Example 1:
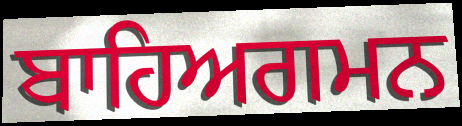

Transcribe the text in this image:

ਬਾਹਿਅਗਮਨ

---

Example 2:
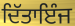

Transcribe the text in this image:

ਦਿੱਤਾਇੰਜ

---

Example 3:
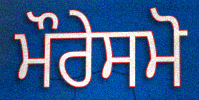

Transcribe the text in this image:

ਮੌਰੇਸਮੋ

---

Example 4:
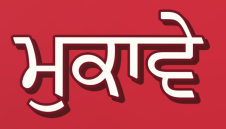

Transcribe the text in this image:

ਮੁਕਾਵੇ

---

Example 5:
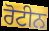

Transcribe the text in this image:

ਰੋਟੀਨ